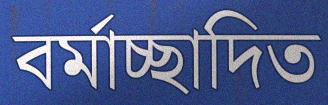
বর্মাচ্ছাদিত